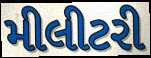
મીલીટરી